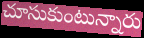
చూసుకుంటున్నారు